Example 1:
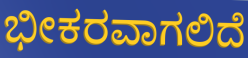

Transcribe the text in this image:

ಭೀಕರವಾಗಲಿದೆ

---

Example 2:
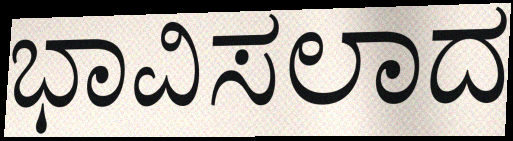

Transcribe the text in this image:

ಭಾವಿಸಲಾದ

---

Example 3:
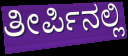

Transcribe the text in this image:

ತೀರ್ಪಿನಲ್ಲಿ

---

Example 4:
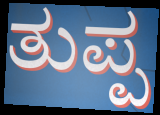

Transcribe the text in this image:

ತುಪ್ಪ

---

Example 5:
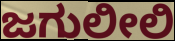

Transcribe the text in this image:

ಜಗುಲೀಲಿ